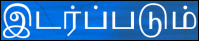
இடர்ப்படும்